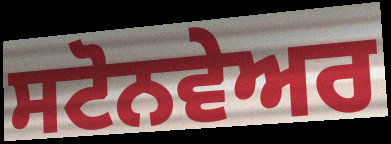
ਸਟੋਨਵੇਅਰ